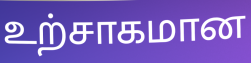
உற்சாகமான